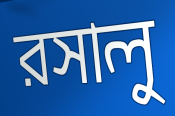
রসালু